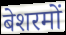
बेशरमों